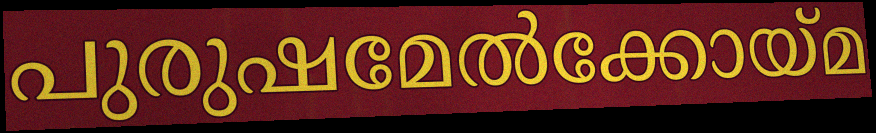
പുരുഷമേൽക്കോയ്മ